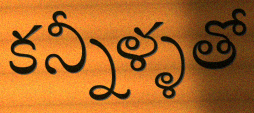
కన్నీళ్ళతో